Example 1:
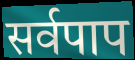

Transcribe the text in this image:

सर्वपाप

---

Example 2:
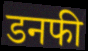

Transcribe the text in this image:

डनफी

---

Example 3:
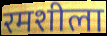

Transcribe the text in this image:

रमशीला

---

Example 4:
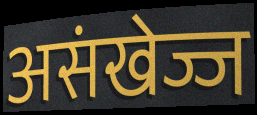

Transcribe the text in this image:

असंखेज्ज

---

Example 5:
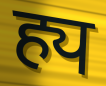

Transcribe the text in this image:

ह्य